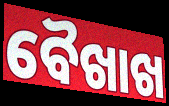
ବୈଖାଖ